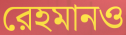
রেহমানও